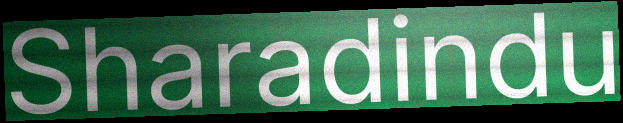
Sharadindu